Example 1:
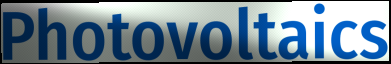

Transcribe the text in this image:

Photovoltaics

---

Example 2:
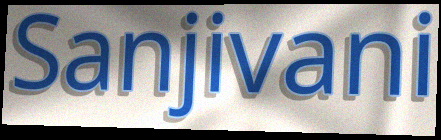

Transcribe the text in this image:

Sanjivani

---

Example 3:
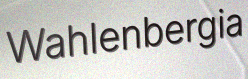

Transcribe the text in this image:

Wahlenbergia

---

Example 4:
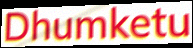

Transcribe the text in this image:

Dhumketu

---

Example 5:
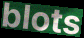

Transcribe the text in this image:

blots